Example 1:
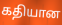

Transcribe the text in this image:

கதியான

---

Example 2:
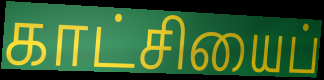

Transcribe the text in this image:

காட்சியைப்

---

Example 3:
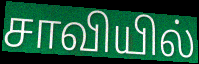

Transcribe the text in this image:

சாவியில்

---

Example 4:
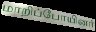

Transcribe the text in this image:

மாறிப்போயினர்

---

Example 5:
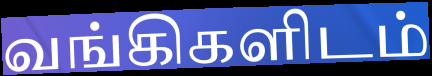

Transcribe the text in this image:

வங்கிகளிடம்